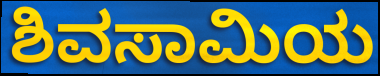
ಶಿವಸಾಮಿಯ